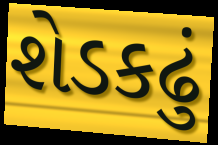
શેડકઢું